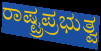
ರಾಷ್ಟ್ರಪ್ರಭುತ್ವ